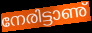
നേരിട്ടാണു്